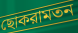
ছোকরামতন